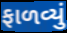
ફાળવ્યું